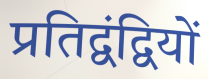
प्रतिद्वंद्वियों